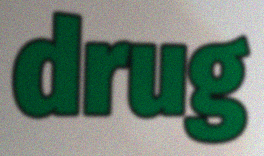
drug